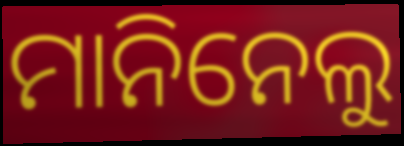
ମାନିନେଲୁ